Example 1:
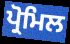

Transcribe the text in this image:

ਪ੍ਰੋਮਿਲ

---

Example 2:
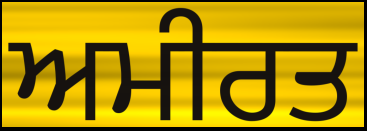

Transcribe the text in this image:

ਅਮੀਰਤ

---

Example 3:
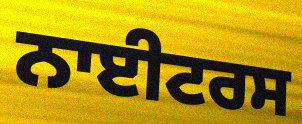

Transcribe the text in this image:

ਨਾਈਟਰਸ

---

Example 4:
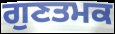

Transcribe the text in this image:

ਗੁਣਤਮਕ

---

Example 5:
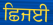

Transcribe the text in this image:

ਛਿਜਈ